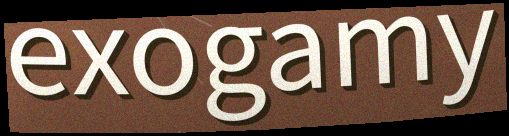
exogamy